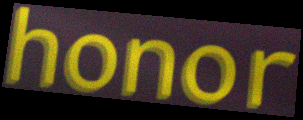
honor